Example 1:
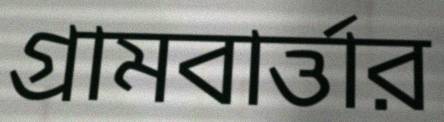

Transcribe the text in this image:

গ্রামবার্ত্তার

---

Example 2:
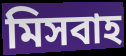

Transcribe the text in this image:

মিসবাহ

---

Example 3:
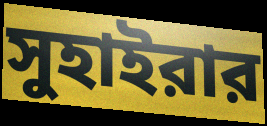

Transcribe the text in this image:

সুহাইরার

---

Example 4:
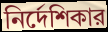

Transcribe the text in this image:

নির্দেশিকার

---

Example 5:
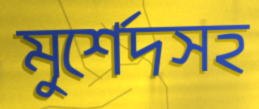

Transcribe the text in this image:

মুর্শেদসহ